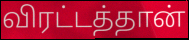
விரட்டத்தான்